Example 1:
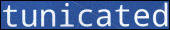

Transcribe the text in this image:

tunicated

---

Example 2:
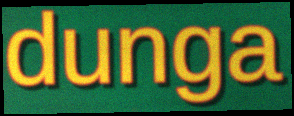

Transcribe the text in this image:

dunga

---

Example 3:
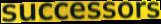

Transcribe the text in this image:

successors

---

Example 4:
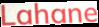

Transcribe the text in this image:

Lahane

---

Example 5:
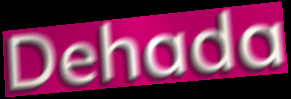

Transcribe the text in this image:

Dehada